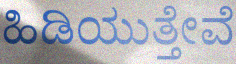
ಹಿಡಿಯುತ್ತೇವೆ